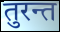
तुरन्त